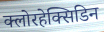
क्लोरहेक्सिडिन